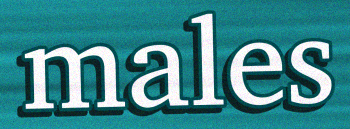
males